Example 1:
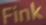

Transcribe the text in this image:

Fink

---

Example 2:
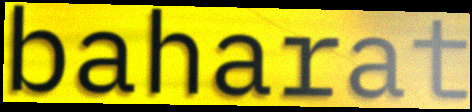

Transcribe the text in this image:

baharat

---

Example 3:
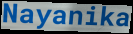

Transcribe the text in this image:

Nayanika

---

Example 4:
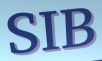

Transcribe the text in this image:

SIB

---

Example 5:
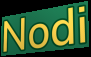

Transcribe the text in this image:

Nodi